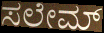
ಸಲೇಮ್